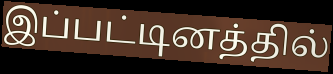
இப்பட்டினத்தில்